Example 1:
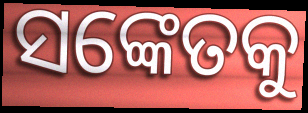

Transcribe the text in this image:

ସଙ୍କେତକୁ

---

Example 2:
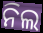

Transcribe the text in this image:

ନିଲ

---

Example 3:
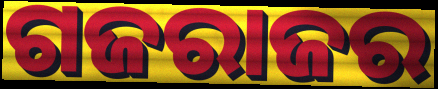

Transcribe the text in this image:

ଗଜରାଜର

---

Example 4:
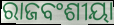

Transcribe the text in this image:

ରାଜବଂଶୀୟା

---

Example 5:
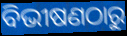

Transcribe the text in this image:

ବିଭୀଷଣଠାରୁ